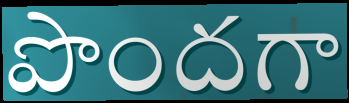
పొందగా